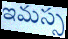
ఇమస్స